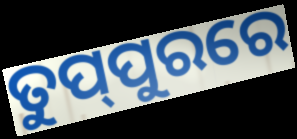
ତୁପ୍‌ପୁରରେ